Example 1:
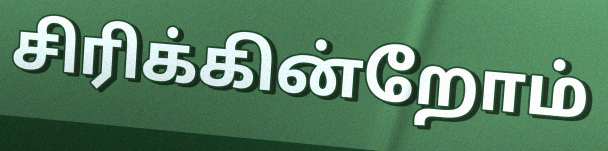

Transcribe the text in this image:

சிரிக்கின்றோம்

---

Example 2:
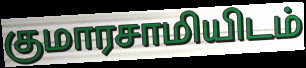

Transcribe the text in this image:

குமாரசாமியிடம்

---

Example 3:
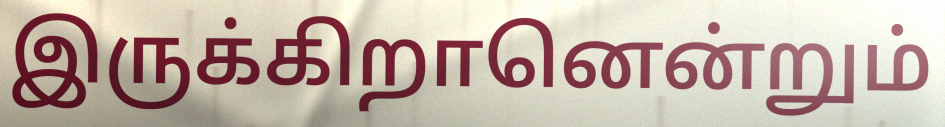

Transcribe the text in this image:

இருக்கிறானென்றும்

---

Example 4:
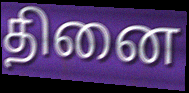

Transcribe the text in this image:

தினை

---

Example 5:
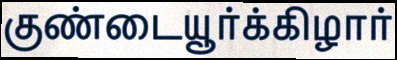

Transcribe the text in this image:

குண்டையூர்க்கிழார்